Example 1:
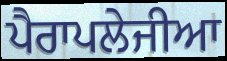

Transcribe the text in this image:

ਪੈਰਾਪਲੇਜੀਆ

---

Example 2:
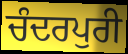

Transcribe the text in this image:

ਚੰਦਰਪੁਰੀ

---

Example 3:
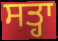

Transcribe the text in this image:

ਸਤ੍ਹਾ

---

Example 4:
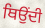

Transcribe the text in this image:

ਥਿਉਂਦੀ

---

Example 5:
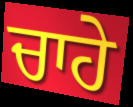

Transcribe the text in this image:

ਚਾਹੇ